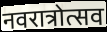
नवरात्रोत्सव